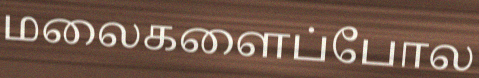
மலைகளைப்போல